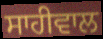
ਸਾਹੀਵਾਲ